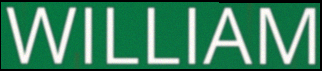
WILLIAM